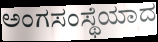
ಅಂಗಸಂಸ್ಥೆಯಾದ